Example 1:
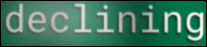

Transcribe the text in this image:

declining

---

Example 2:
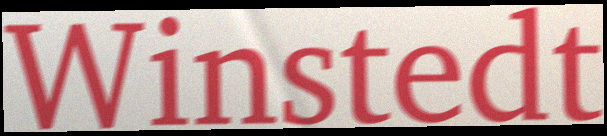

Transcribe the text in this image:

Winstedt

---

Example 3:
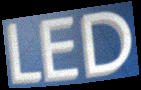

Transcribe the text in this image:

LED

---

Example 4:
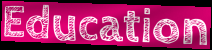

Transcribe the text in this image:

Education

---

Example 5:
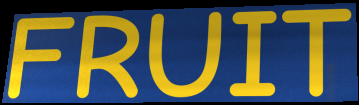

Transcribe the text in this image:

FRUIT